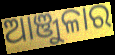
ଆଞ୍ଜୁଳାର